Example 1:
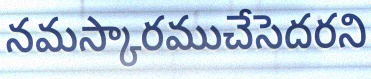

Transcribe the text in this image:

నమస్కారముచేసెదరని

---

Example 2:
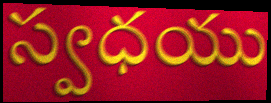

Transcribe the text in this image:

స్వధయు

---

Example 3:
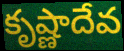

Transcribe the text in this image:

కృష్ణాదేవ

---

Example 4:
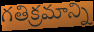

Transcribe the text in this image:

గతిక్రమాన్ని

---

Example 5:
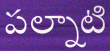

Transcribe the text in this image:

పల్నాటి